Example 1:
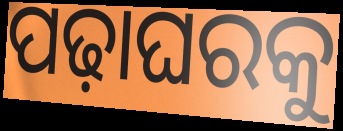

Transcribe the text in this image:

ପଢ଼ାଘରକୁ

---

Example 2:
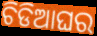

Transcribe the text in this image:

ଚିଡିଆଘର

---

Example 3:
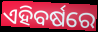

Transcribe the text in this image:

ଏହିବର୍ଷରେ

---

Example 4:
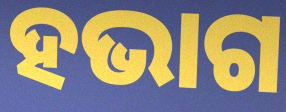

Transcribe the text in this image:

ହଭାଗ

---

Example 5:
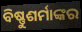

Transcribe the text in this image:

ବିଷ୍ଣୁଶର୍ମାଙ୍କର